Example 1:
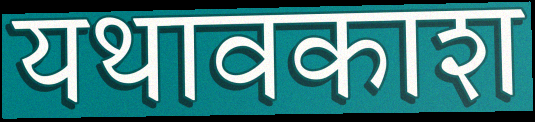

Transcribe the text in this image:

यथावकाश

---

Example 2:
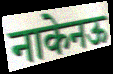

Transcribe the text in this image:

नाकेनऊ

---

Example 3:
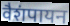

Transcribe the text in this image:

वैशंपायन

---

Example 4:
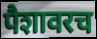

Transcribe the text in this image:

पैशावरच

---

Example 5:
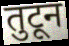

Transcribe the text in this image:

तुटून